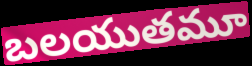
బలయుతమూ